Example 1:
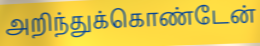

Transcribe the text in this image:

அறிந்துக்கொண்டேன்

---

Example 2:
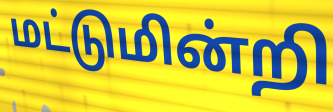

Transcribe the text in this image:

மட்டுமின்றி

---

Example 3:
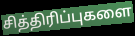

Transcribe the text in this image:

சித்திரிப்புகளை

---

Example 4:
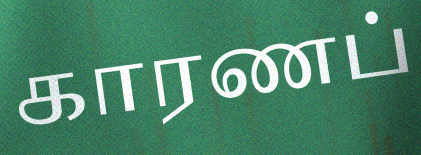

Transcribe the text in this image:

காரணப்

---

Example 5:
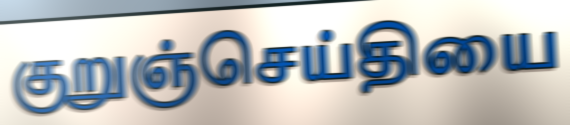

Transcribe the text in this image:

குறுஞ்செய்தியை